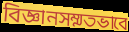
বিজ্ঞানসম্মতভাবে